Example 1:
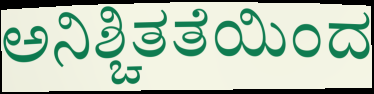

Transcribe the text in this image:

ಅನಿಶ್ಚಿತತೆಯಿಂದ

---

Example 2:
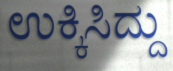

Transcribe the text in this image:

ಉಕ್ಕಿಸಿದ್ದು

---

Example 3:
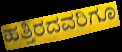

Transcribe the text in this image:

ಹತ್ತಿರದವರಿಗೂ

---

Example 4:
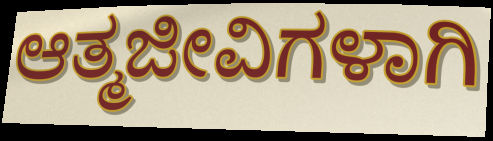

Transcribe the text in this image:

ಆತ್ಮಜೀವಿಗಳಾಗಿ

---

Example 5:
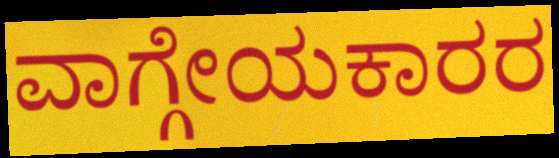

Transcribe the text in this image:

ವಾಗ್ಗೇಯಕಾರರ